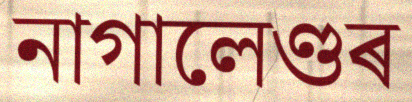
নাগালেণ্ডৰ